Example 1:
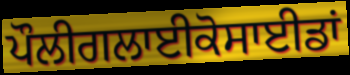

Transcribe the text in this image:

ਪੌਲੀਗਲਾਈਕੋਸਾਈਡਾਂ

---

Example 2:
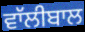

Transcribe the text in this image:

ਵਾੱਲੀਬਾਲ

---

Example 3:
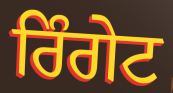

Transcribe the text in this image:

ਰਿੰਗੇਟ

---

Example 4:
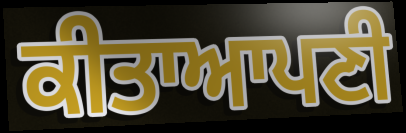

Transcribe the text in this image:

ਕੀਤਾਆਪਣੀ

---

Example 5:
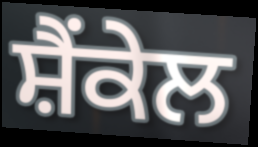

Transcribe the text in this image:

ਸ਼ੈਂਕੇਲ